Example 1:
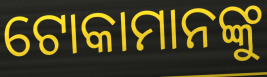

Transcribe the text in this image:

ଟୋକାମାନଙ୍କୁ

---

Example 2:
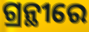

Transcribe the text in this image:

ଗ୍ରନ୍ଥୀରେ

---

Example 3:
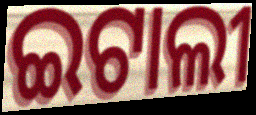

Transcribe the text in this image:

ଇଟାଲୀ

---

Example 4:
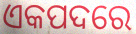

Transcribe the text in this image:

ଏକପଦରେ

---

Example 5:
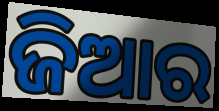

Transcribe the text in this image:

ଜିଆର